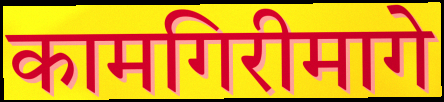
कामगिरीमागे